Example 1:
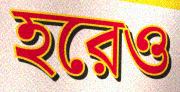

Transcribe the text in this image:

হরেও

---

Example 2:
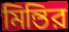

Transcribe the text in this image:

মিন্তির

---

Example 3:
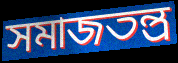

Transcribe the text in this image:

সমাজতন্ত্র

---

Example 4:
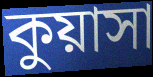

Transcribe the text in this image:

কুয়াসা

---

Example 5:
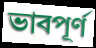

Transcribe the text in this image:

ভাবপূর্ণ